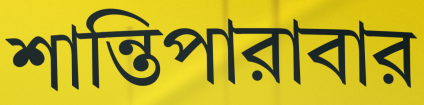
শান্তিপারাবার